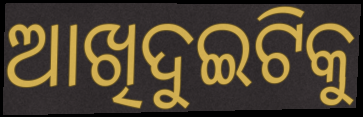
ଆଖିଦୁଇଟିକୁ